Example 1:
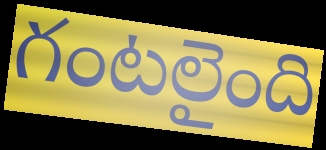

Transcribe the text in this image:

గంటలైంది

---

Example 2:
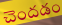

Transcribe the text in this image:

చెందడం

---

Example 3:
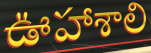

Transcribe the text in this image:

ఊహాశాలి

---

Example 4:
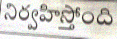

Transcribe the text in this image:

నిర్వహిస్తోంది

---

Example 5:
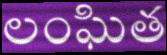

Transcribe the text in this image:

లంఘిత